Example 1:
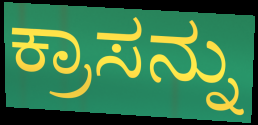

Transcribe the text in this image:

ಕ್ರಾಸನ್ನು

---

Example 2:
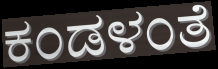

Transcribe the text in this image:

ಕಂಡಳಂತೆ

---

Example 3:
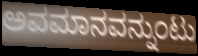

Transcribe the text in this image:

ಅವಮಾನವನ್ನುಂಟು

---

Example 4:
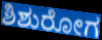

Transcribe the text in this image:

ಶಿಶುರೋಗ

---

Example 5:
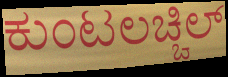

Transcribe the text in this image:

ಕುಂಟಲಚ್ಚಿಲ್